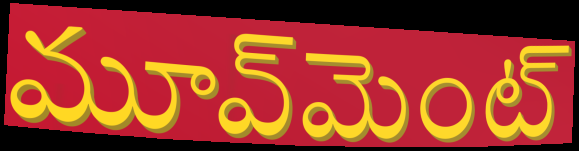
మూవ్‌మెంట్